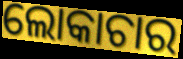
ଲୋକାଚାର